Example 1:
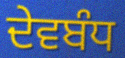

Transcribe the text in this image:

ਦੇਵਬੰਧ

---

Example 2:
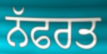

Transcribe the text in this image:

ਨੱਫਰਤ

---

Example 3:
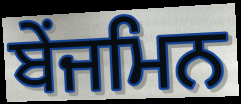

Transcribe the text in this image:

ਬੇਂਜਮਿਨ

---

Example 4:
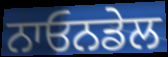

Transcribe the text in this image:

ਨਾਓਨਡੇਲ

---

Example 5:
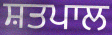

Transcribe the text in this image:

ਸ਼ਤਪਾਲ